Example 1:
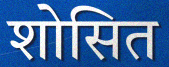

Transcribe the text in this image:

शोसित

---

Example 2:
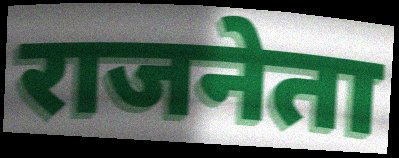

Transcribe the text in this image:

राजनेता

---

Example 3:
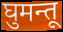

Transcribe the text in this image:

घुमन्तू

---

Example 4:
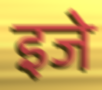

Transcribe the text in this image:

इजे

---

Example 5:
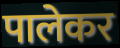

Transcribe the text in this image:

पालेकर